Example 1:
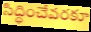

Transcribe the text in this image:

సిద్ధించేవరకూ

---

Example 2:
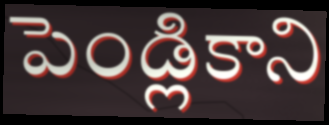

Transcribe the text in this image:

పెండ్లికాని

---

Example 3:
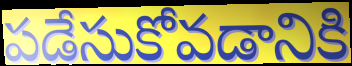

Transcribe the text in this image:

పడేసుకోవడానికి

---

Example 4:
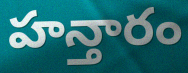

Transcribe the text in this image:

హన్తారం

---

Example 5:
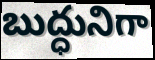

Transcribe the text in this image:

బుద్ధునిగా